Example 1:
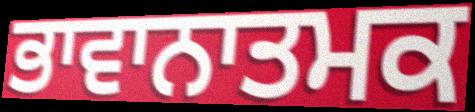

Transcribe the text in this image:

ਭਾਵਾਨਾਤਮਕ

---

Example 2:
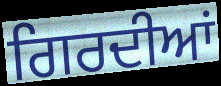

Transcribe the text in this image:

ਗਿਰਦੀਆਂ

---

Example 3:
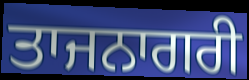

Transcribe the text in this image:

ਤਾਜਨਾਗਰੀ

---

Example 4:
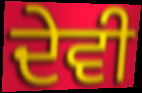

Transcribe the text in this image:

ਦੇਵੀ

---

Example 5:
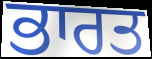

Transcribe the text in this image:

ਭਾਰਤ